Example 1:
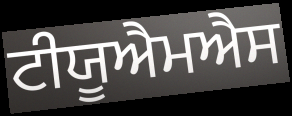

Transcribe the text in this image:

ਟੀਯੂਐਮਐਸ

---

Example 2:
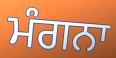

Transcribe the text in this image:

ਮੰਗਨਾ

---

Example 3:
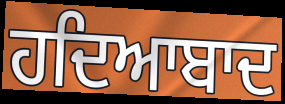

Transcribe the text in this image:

ਹਦਿਆਬਾਦ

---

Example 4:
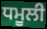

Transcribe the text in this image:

ਧਮੂਲੀ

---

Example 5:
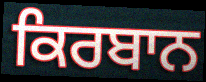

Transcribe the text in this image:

ਕਿਰਬਾਨ